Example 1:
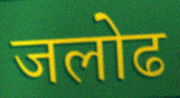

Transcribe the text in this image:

जलोढ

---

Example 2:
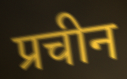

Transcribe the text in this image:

प्रचीन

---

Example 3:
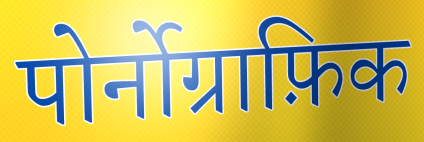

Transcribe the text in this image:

पोर्नोग्राफ़िक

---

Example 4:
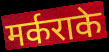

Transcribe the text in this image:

मर्कराके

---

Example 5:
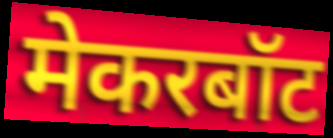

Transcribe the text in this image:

मेकरबॉट